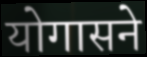
योगासने